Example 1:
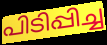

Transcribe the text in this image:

പിടിപ്പിച്ച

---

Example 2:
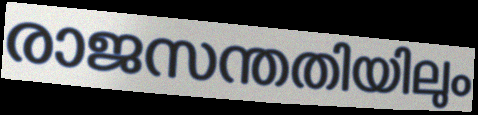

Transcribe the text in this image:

രാജസന്തതിയിലും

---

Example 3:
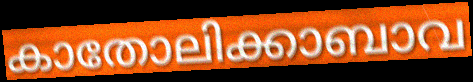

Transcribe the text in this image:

കാതോലിക്കാബാവ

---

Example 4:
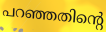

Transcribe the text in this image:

പറഞ്ഞതിന്റെ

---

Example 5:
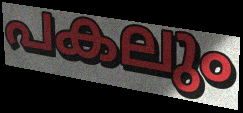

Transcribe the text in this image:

പകലും